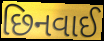
છિનવાઈ